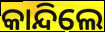
କାନ୍ଦିଲେ